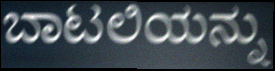
ಬಾಟಲಿಯನ್ನು